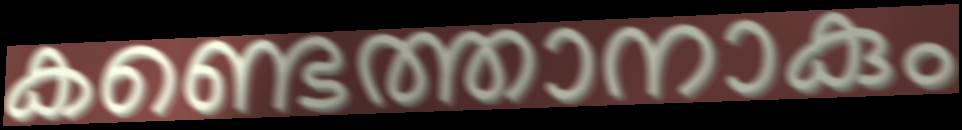
കണ്ടെത്താനാകും